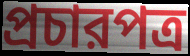
প্রচারপত্র